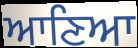
ਆਣਿਆ